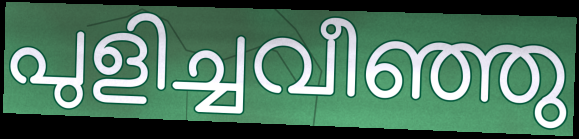
പുളിച്ചവീഞ്ഞു